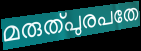
മരുത്പുരപതേ